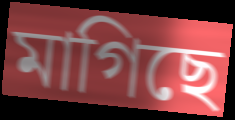
মাগিছে